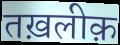
तख़लीक़